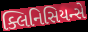
ક્લિનિસિયન્સે